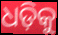
ଧଡ଼ିକୁ